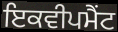
ਇਕਵੀਪਮੈਂਟ